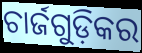
ଚାର୍ଜଗୁଡ଼ିକର